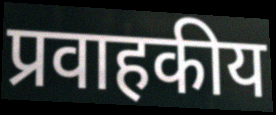
प्रवाहकीय